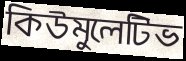
কিউমুলেটিভ